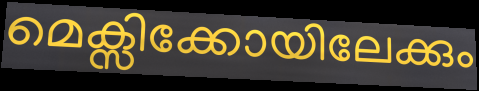
മെക്സിക്കോയിലേക്കും